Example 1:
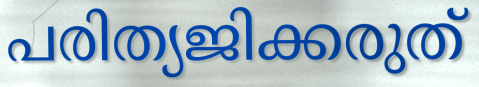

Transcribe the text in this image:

പരിത്യജിക്കരുത്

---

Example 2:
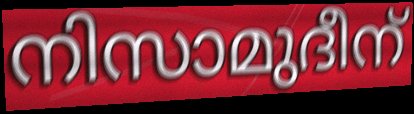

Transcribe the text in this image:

നിസാമുദീന്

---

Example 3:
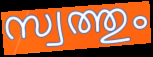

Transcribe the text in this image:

സ്വത്തും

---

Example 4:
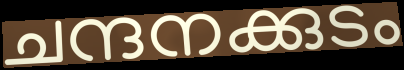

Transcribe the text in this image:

ചന്ദനക്കുടം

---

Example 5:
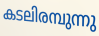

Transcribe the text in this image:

കടലിരമ്പുന്നു